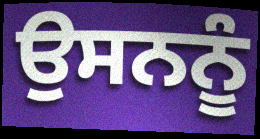
ਉਸਨਨੂੰ